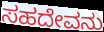
ಸಹದೇವನು